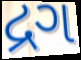
દ્રગ